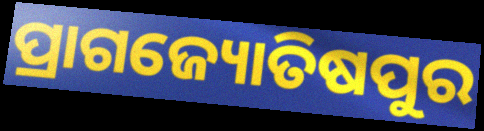
ପ୍ରାଗଜ୍ୟୋତିଷପୁର